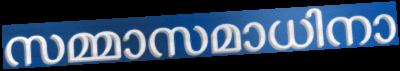
സമ്മാസമാധിനാ